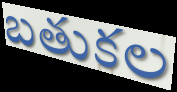
బతుకల